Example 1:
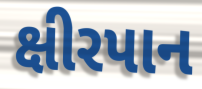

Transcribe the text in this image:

ક્ષીરપાન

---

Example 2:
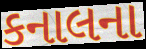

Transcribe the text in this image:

કનાલના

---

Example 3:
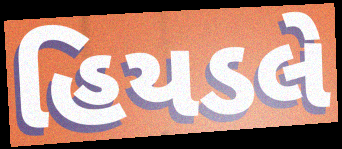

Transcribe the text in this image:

હિયડલે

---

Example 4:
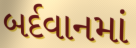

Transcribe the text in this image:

બર્દવાનમાં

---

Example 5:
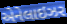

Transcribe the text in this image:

એનેલાઇઝર